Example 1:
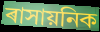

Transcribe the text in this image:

ৰাসায়নিক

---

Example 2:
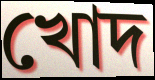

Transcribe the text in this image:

খোদ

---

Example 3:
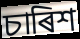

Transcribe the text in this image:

চাৰিশ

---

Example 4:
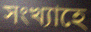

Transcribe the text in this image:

সংখ্যাহে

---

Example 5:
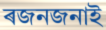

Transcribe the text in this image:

ৰজনজনাই